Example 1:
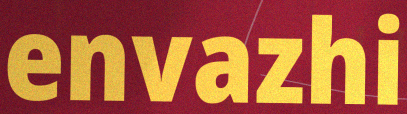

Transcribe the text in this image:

envazhi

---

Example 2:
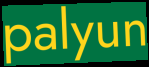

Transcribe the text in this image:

palyun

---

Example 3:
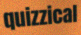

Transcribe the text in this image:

quizzical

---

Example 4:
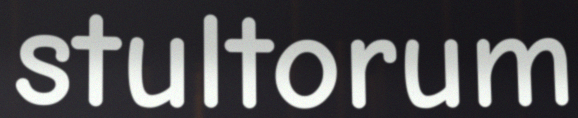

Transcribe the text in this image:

stultorum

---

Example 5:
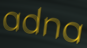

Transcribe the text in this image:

adna